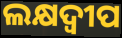
ଲକ୍ଷଦ୍ୱୀପ